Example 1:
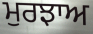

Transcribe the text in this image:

ਮੁਰਝਾਅ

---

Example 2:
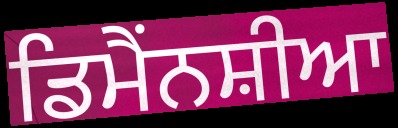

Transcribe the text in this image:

ਡਿਮੈਂਨਸ਼ੀਆ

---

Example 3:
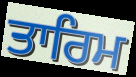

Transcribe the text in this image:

ਤਾਰਿਮ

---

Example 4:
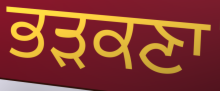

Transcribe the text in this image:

ਭੜਕਣਾ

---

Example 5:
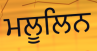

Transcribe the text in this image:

ਮਲੂਲਿਨ